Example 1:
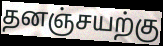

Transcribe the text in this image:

தனஞ்சயற்கு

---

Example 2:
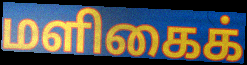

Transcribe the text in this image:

மளிகைக்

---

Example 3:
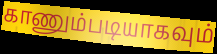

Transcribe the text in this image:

காணும்படியாகவும்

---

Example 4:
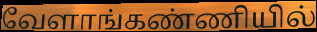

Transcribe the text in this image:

வேளாங்கண்ணியில்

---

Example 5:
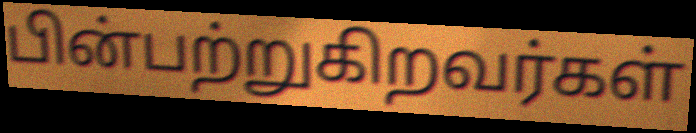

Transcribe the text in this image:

பின்பற்றுகிறவர்கள்